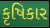
કૃષિકાર